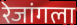
रेजांगला